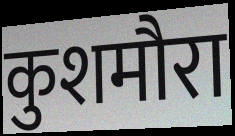
कुशमौरा